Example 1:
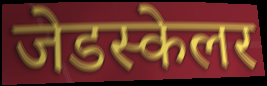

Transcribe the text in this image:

जेडस्केलर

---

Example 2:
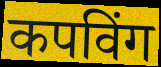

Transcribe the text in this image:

कपविंग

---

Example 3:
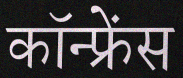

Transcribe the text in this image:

कॉन्फ्रेंस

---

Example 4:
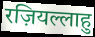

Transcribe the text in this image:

रज़ियल्लाहु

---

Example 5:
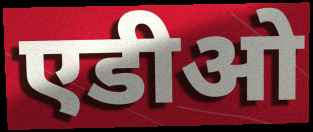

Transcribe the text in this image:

एडीओ